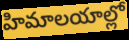
హిమాలయాల్లో